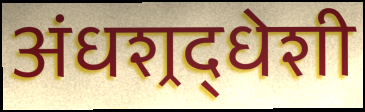
अंधश्रद्धेशी